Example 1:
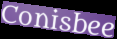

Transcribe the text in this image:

Conisbee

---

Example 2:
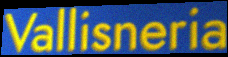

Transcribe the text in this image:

Vallisneria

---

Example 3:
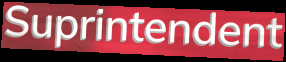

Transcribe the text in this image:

Suprintendent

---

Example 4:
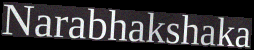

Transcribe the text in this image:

Narabhakshaka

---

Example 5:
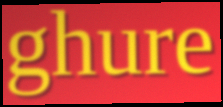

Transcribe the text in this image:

ghure